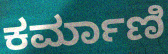
ಕರ್ಮಾಣಿ